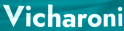
Vicharoni